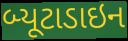
બ્યૂટાડાઇન